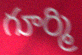
గూర్మి